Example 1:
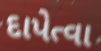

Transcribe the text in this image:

દાપેત્વા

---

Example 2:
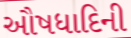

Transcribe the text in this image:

ઔષધાદિની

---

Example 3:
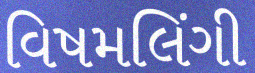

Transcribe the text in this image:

વિષમલિંગી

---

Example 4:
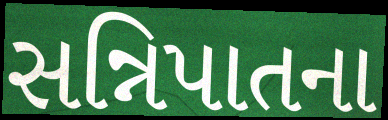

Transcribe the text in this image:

સન્નિપાતના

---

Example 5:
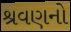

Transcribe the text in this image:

શ્રવણનો